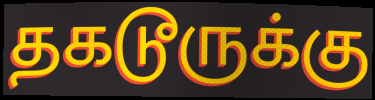
தகடூருக்கு